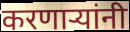
करणार्‍यांनी